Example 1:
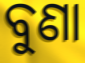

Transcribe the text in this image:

ବୁଣା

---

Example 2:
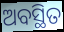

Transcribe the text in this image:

ଅବସ୍ଥିତ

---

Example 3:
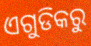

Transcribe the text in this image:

ଏଗୁଡିକରୁ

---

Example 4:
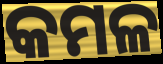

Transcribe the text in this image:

କମଳ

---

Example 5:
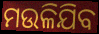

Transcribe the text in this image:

ମଉଳିଯିବ